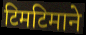
टिमटिमाने